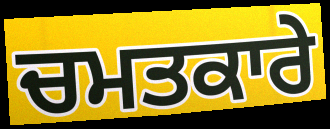
ਚਮਤਕਾਰੇ